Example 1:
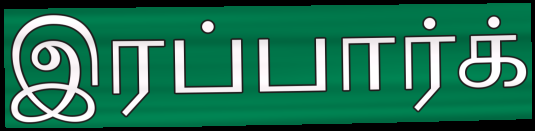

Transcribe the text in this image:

இரப்பார்க்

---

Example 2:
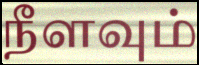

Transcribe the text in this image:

நீளவும்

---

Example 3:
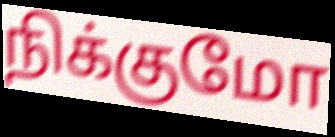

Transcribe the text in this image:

நிக்குமோ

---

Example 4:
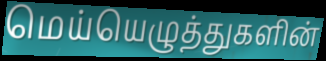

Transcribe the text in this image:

மெய்யெழுத்துகளின்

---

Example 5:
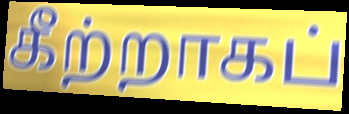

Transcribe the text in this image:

கீற்றாகப்